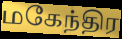
மகேந்திர